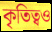
কৃতিত্বও